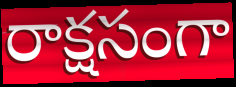
రాక్షసంగా